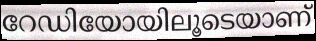
റേഡിയോയിലൂടെയാണ്